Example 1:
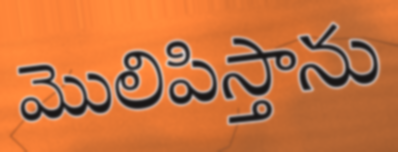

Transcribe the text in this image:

మొలిపిస్తాను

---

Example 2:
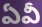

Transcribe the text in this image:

ఏవీ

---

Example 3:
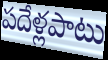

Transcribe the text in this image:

పదేళ్లపాటు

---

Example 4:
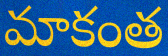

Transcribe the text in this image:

మాకంత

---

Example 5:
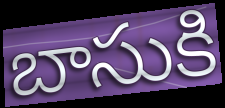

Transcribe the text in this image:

బాసుకి